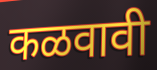
कळवावी